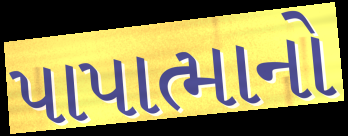
પાપાત્માનો